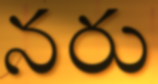
నరు